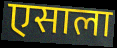
एसाला